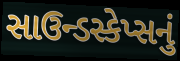
સાઉન્ડસ્કેપ્સનું